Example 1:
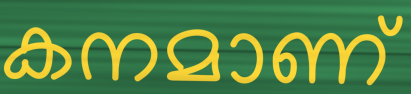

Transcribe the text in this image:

കനമാണ്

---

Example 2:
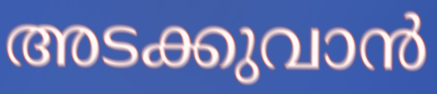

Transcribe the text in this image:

അടക്കുവാൻ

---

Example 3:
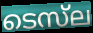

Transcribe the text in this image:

ടെസ്‌ല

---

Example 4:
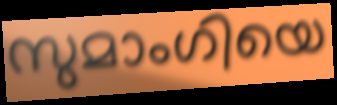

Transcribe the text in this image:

സുമാംഗിയെ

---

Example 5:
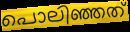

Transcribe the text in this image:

പൊലിഞ്ഞത്